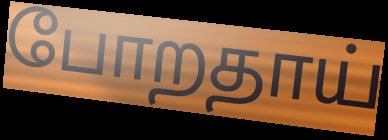
போறதாய்